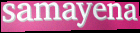
samayena